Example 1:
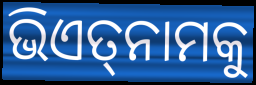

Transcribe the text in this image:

ଭିଏତ୍‌ନାମକୁ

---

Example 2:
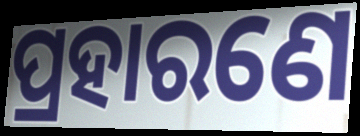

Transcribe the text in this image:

ପ୍ରହାରଣେ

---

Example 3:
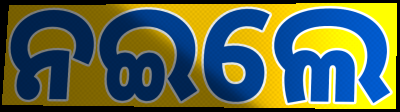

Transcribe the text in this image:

ନଇଲେ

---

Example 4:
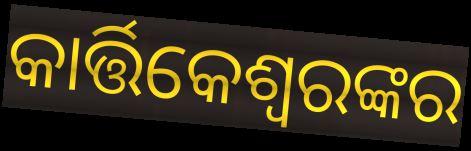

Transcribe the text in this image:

କାର୍ତ୍ତିକେଶ୍ୱରଙ୍କର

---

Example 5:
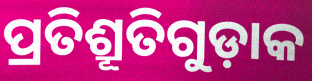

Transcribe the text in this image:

ପ୍ରତିଶ୍ରୂତିଗୁଡ଼ାକ